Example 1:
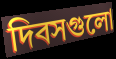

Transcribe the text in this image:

দিবসগুলো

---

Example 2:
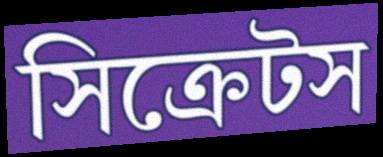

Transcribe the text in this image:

সিক্রেটস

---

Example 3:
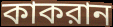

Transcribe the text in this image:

কাকরান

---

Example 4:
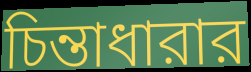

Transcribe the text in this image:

চিন্তাধারার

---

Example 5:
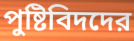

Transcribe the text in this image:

পুষ্টিবিদদের